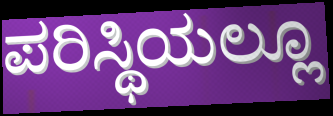
ಪರಿಸ್ಥಿಯಲ್ಲೂ